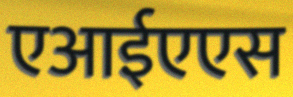
एआईएएस